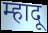
म्हादू